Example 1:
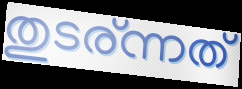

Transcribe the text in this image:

തുടര്ന്നത്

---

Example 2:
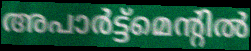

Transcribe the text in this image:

അപാർട്ട്മെന്റിൽ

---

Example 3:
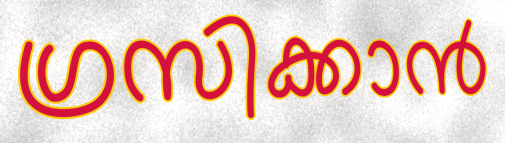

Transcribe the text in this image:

ഗ്രസിക്കാൻ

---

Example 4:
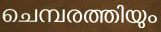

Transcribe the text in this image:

ചെമ്പരത്തിയും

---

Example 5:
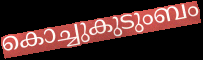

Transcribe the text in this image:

കൊച്ചുകുടുംബം